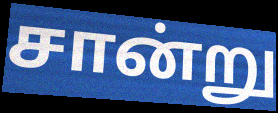
சான்று